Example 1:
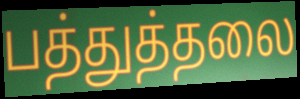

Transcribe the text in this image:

பத்துத்தலை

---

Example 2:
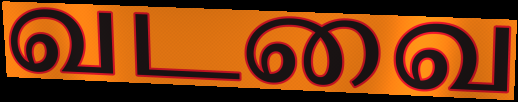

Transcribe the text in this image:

வடவை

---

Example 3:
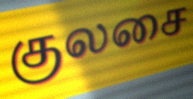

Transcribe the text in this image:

குலசை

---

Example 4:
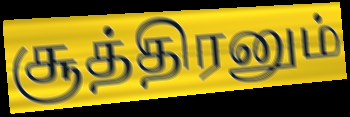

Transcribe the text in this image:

சூத்திரனும்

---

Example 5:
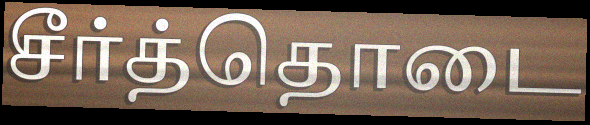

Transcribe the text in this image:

சீர்த்தொடை